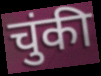
चुंकी